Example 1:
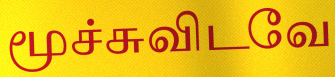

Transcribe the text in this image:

மூச்சுவிடவே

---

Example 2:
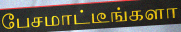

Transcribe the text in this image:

பேசமாட்டீங்களா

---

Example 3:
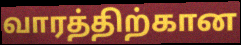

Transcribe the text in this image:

வாரத்திற்கான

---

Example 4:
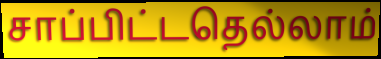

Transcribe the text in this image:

சாப்பிட்டதெல்லாம்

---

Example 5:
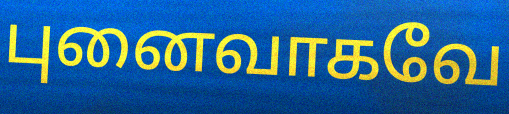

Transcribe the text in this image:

புனைவாகவே